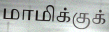
மாமிக்குக்